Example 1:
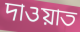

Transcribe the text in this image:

দাওয়াত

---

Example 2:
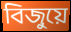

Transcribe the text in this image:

বিজুয়ে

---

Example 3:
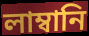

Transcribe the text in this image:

লাম্বানি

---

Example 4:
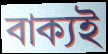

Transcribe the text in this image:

বাক্যই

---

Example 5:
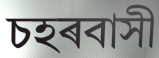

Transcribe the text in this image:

চহৰবাসী